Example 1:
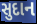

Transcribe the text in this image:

સુદાન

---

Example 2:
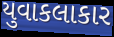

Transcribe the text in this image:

યુવાકલાકાર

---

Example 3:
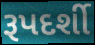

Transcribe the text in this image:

રૂપદર્શી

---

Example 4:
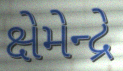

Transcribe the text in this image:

ક્ષેમેન્દ્રે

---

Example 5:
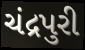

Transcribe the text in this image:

ચંદ્રપુરી